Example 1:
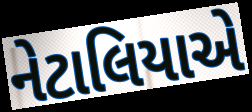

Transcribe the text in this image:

નેટાલિયાએ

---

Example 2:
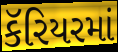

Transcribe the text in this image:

કૅરિયરમાં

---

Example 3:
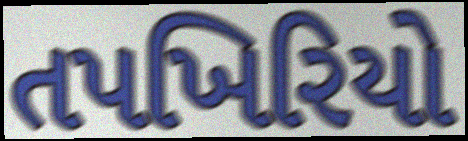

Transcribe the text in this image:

તપખિરિયો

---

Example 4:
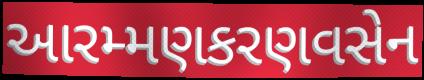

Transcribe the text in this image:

આરમ્મણકરણવસેન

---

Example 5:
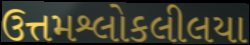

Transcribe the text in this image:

ઉત્તમશ્લોકલીલયા